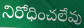
నిరోధించలేవు